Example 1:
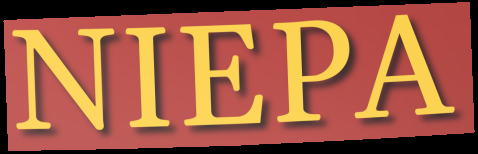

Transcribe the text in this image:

NIEPA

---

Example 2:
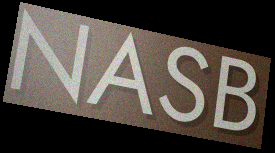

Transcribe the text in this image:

NASB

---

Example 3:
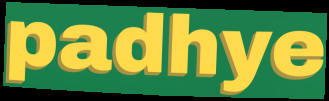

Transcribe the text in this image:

padhye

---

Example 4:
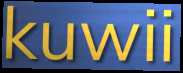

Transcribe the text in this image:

kuwii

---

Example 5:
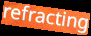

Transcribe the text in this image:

refracting